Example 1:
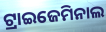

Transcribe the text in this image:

ଟ୍ରାଇଜେମିନାଲ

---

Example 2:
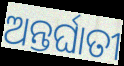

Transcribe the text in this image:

ଅନ୍ତର୍ଘାତୀ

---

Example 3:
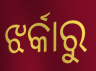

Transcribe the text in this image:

ଝର୍କାରୁ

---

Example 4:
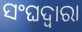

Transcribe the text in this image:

ସଂଘଦ୍ୱାରା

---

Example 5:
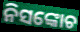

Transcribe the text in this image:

ନିସଙ୍କୋଚ